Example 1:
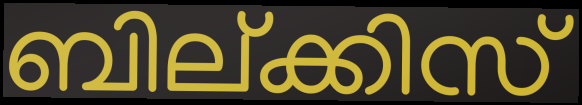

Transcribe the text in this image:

ബില്ക്കിസ്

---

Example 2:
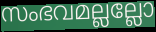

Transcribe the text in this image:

സംഭവമല്ലല്ലോ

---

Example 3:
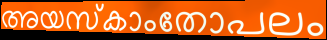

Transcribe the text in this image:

അയസ്കാംതോപലം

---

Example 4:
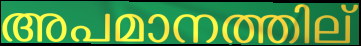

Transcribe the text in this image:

അപമാനത്തില്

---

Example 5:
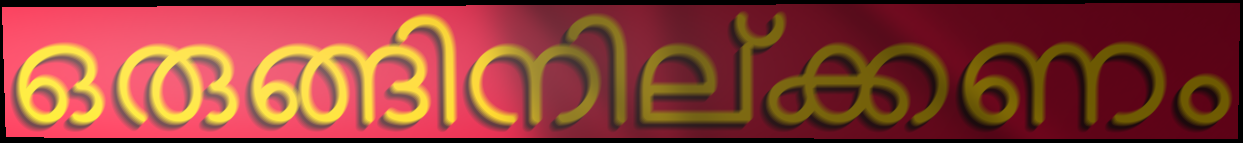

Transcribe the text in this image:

ഒരുങ്ങിനില്ക്കണം